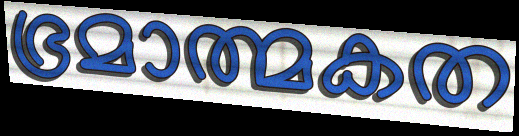
ഭ്രമാത്മകത